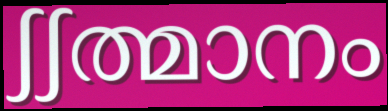
ഽഽത്മാനം